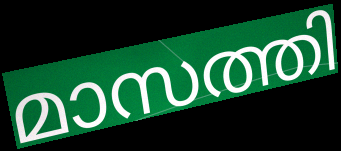
മാസത്തി